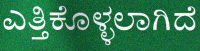
ಎತ್ತಿಕೊಳ್ಳಲಾಗಿದೆ